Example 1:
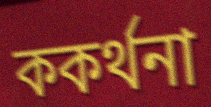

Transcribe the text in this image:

ককৰ্থনা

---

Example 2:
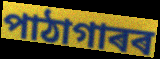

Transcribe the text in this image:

পাঠাগাৰৰ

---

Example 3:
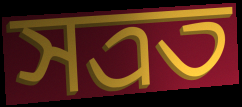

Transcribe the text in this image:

সত্ৰত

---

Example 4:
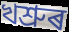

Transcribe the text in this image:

খশ্ৰুৰ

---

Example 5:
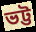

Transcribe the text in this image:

ভট্ট